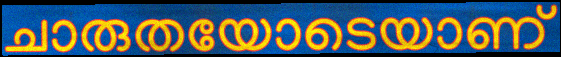
ചാരുതയോടെയാണ്